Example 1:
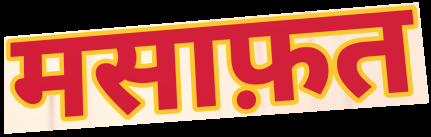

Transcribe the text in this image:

मसाफ़त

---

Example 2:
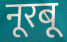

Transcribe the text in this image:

नूरबू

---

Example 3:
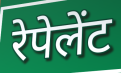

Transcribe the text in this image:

रेपेलेंट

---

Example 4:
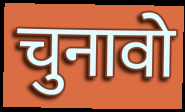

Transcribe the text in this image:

चुनावो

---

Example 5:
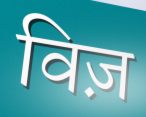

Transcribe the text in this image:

विज़